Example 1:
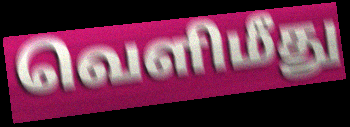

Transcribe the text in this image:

வெளிமீது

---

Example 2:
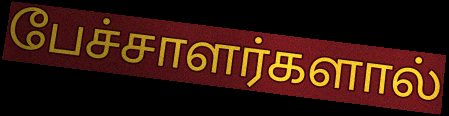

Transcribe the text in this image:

பேச்சாளர்களால்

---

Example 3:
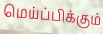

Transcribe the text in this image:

மெய்ப்பிக்கும்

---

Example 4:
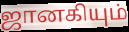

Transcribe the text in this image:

ஜானகியும்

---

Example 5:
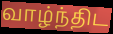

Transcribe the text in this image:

வாழ்ந்திட